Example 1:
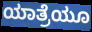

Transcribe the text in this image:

ಯಾತ್ರೆಯೂ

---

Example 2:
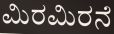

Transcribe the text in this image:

ಮಿರಮಿರನೆ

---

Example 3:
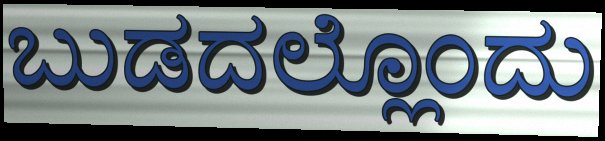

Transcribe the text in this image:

ಬುಡದಲ್ಲೊಂದು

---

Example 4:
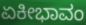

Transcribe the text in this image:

ಏಕೀಭಾವಂ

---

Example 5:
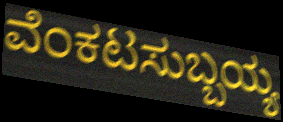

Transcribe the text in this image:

ವೆಂಕಟಸುಬ್ಬಯ್ಯ